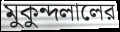
মুকুন্দলালের